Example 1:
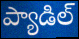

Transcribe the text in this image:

ప్యాడిల్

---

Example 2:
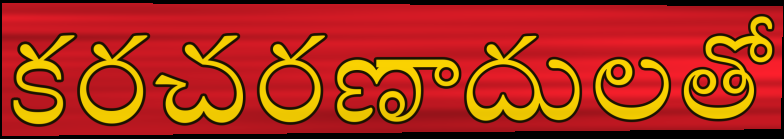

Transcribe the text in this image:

కరచరణాదులతో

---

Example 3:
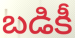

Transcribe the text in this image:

బడికీ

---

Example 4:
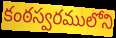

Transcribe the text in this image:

కంఠస్వరములోని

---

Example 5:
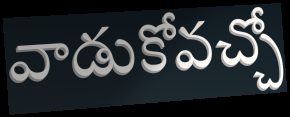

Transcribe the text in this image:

వాడుకోవచ్చో